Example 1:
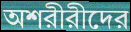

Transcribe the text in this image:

অশরীরীদের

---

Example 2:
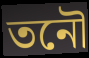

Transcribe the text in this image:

তনৌ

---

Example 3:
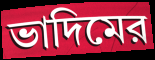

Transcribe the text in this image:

ভাদিমের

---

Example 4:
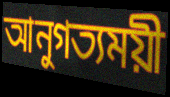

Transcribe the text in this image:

আনুগত্যময়ী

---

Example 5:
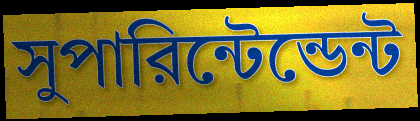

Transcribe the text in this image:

সুপারিন্টেন্ডেন্ট